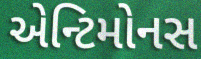
એન્ટિમોનસ